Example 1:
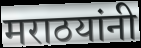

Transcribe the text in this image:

मराठयांनी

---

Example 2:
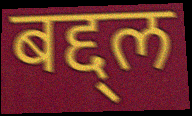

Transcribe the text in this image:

बद्द्ल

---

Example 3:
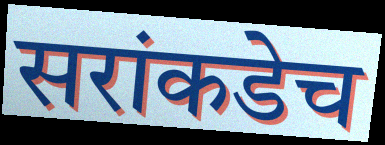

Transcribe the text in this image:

सरांकडेच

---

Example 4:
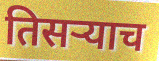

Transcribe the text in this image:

तिसर्‍याच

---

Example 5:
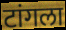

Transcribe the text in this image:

टांगला